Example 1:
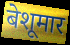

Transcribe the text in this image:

बेशूमार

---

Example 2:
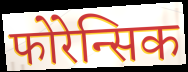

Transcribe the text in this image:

फोरेन्सिक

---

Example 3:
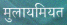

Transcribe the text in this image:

मुलायमियत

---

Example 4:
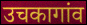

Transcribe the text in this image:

उचकागांव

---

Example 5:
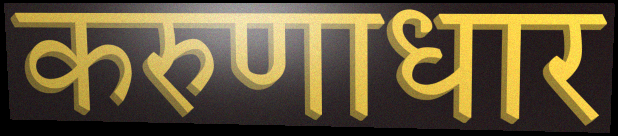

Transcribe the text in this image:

करुणाधार